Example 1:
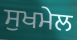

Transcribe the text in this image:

ਸੁਖਮੇਲ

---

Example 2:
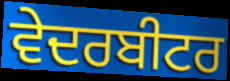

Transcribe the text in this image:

ਵੇਦਰਬੀਟਰ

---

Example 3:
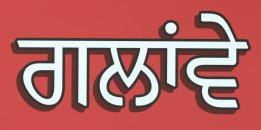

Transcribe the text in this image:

ਗਲਾਂਵੇ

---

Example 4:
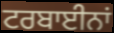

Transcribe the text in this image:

ਟਰਬਾਈਨਾਂ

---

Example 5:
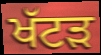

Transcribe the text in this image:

ਖੱਟੜ